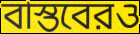
বাস্তবেরও